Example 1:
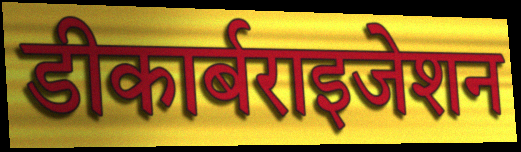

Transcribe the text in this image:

डीकार्बराइजेशन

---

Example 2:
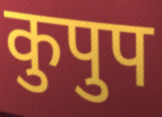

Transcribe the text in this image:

कुपुप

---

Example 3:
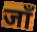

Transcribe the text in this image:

जाँ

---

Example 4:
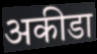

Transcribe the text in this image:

अकीडा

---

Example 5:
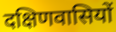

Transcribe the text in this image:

दक्षिणवासियों